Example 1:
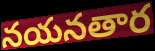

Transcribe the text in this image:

నయనతార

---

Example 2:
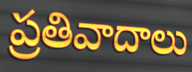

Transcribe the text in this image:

ప్రతివాదాలు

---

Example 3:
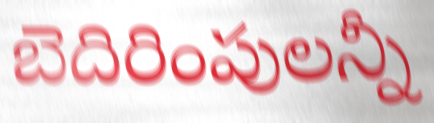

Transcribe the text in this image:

బెదిరింపులన్నీ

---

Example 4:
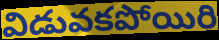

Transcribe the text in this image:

విడువకపోయిరి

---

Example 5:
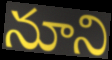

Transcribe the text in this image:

నూని